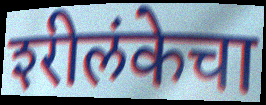
श्रीलंकेचा